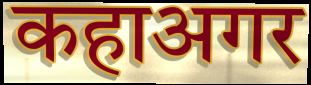
कहाअगर